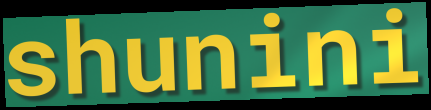
shunini